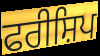
ਫਰੀਸ਼ਿਪ